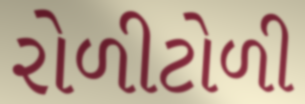
રોળીટોળી